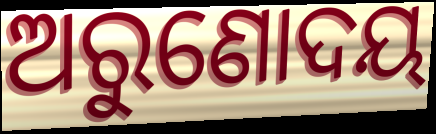
ଅରୁଣୋଦୟ